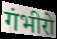
गंभीरो